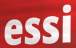
essi